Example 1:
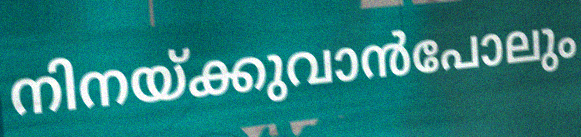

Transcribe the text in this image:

നിനയ്ക്കുവാൻപോലും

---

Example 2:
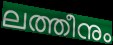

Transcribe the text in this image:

ലത്തീനും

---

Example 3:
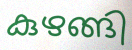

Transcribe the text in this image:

കുഴങ്ങി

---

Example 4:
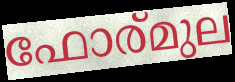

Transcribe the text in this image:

ഫോര്മുല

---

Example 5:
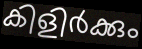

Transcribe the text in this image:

കിളിർക്കും